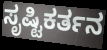
ಸೃಷ್ಟಿಕರ್ತನ